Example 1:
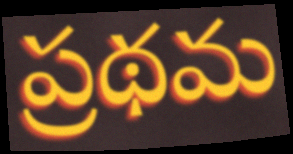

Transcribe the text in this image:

ప్రథమ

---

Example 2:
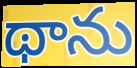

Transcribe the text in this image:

థాను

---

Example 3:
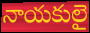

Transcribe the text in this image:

నాయకులై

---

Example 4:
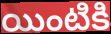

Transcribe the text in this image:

యింటికి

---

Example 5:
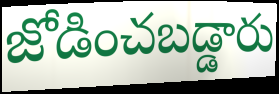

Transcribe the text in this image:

జోడించబడ్డారు